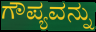
ಗೌಪ್ಯವನ್ನು